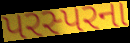
પરસ્પરના